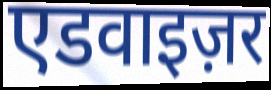
एडवाइज़र